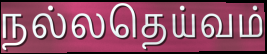
நல்லதெய்வம்